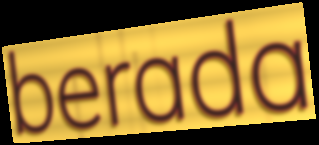
berada